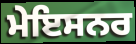
ਮੇਇਸਨਰ